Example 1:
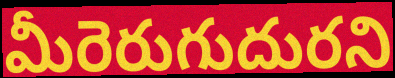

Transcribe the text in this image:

మీరెరుగుదురని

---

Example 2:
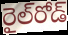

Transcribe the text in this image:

రైల్‌రోడ్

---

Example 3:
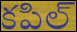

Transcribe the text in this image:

కపిల్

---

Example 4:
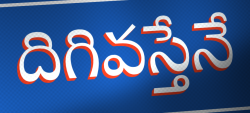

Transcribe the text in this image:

దిగివస్తేనే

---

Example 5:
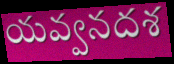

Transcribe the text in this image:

యవ్వనదశ